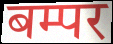
बम्पर